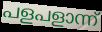
പളപളാന്ന്